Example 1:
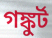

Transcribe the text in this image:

গঙ্কুর্ট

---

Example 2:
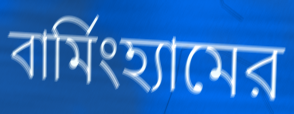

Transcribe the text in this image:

বার্মিংহ্যামের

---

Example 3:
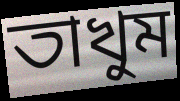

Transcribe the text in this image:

তাখুম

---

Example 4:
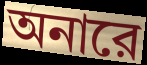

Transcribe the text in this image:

অনারে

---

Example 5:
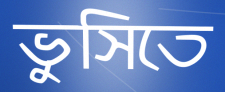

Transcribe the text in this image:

ভুসিতে